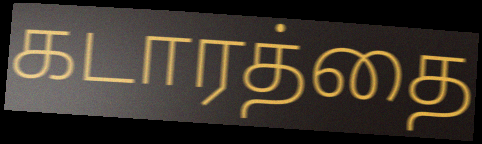
கடாரத்தை